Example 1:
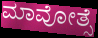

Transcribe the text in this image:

ಮಾವೋತ್ಸೆ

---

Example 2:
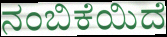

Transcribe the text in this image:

ನಂಬಿಕೆಯಿದೆ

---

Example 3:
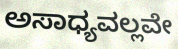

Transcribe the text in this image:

ಅಸಾಧ್ಯವಲ್ಲವೇ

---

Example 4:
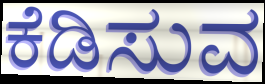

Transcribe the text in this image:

ಕೆಡಿಸುವ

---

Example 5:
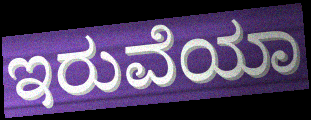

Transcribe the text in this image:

ಇರುವೆಯಾ